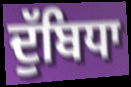
ਦੁੱਬਿਧਾ